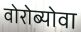
वोरोब्योवा